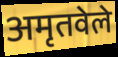
अमृतवेले